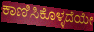
ಕಾಣಿಸಿಕೊಳ್ಳದೆಯೇ